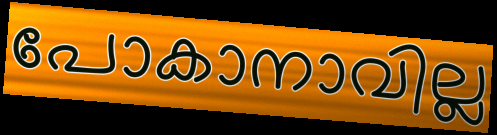
പോകാനാവില്ല